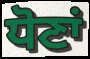
ਧੋਣਾਂ